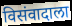
विसंवादाला